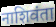
नाशिवंता